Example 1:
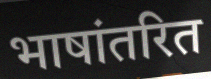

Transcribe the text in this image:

भाषांतरित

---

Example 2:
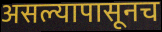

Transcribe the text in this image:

असल्यापासूनच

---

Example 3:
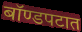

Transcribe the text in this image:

बॉण्डपटात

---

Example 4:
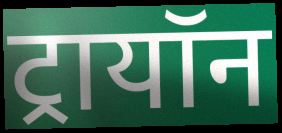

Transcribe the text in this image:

ट्रायॉन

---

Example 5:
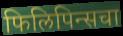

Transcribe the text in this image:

फिलिपिन्सचा